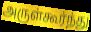
அருள்கூர்ந்து